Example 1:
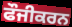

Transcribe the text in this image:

ਫੌਜੀਕਰਨ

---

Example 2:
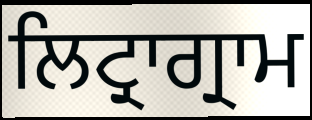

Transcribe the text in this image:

ਲਿਟ੍ਰਾਗ੍ਰਾਮ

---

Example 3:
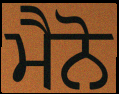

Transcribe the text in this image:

ਮੈਨੋ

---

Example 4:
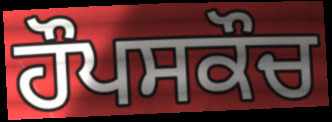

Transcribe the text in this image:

ਹੌਪਸਕੌਚ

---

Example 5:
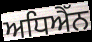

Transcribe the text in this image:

ਅਧਿਐੱਨ